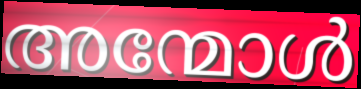
അന്മോൾ